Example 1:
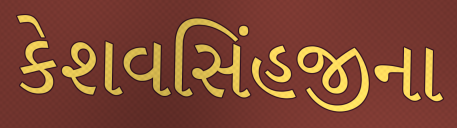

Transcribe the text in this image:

કેશવસિંહજીના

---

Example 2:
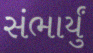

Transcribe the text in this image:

સંભાર્યું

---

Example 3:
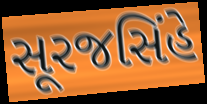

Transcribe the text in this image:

સૂરજસિંહે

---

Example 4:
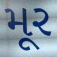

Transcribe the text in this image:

મૂર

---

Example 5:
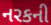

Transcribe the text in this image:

નરકની